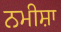
ਨਮੀਸ਼ਾ